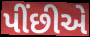
પીંછીએ